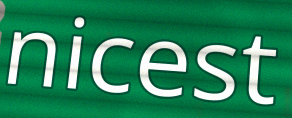
nicest